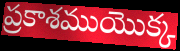
ప్రకాశముయొక్క